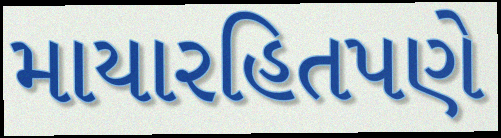
માયારહિતપણે